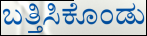
ಬತ್ತಿಸಿಕೊಂಡು